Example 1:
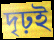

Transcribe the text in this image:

দৃঢ়ই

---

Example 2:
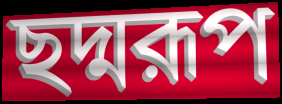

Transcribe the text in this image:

ছদ্মরূপ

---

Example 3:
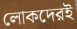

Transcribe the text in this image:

লোকদেরই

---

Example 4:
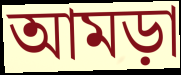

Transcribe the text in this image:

আমড়া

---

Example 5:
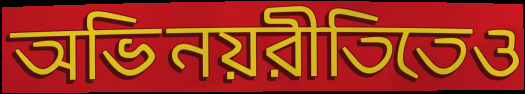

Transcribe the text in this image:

অভিনয়রীতিতেও